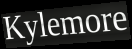
Kylemore